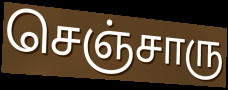
செஞ்சாரு